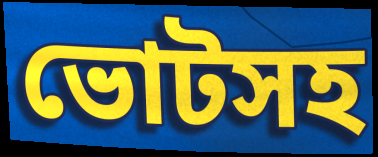
ভোটসহ